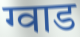
ग्वाड